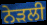
ਨੇੜਲੀ